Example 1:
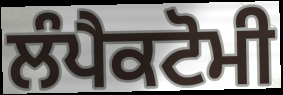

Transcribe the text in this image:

ਲੰਪੈਕਟੋਮੀ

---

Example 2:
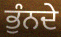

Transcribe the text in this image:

ਭੁੰਨਦੇ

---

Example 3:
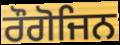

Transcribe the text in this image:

ਰੌਗੋਜਿਨ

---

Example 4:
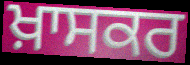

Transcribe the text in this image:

ਖ਼ਾਸਕਰ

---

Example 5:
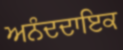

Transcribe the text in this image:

ਅਨੰਦਦਾਇਕ